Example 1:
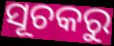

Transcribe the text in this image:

ସୂଚକରୁ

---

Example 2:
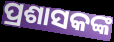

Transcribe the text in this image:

ପ୍ରଶାସକଙ୍କ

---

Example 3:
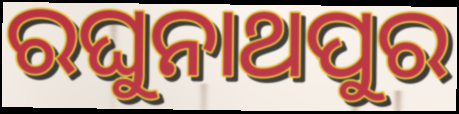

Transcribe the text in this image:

ରଘୁନାଥପୁର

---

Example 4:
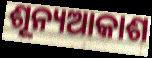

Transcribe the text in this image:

ଶୂନ୍ୟଆକାଶ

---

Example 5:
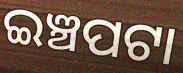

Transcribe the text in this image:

ଇଞ୍ଚପଟା